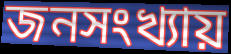
জনসংখ্যায়